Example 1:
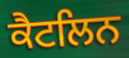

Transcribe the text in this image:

ਕੈਟਲਿਨ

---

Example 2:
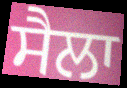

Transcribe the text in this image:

ਸੈਲਾ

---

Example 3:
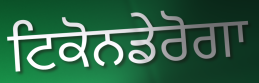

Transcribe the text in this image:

ਟਿਕੋਨਡੇਰੋਗਾ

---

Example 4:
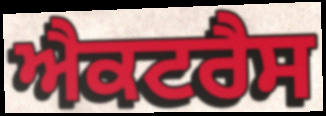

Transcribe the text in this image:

ਐਕਟਰੈਸ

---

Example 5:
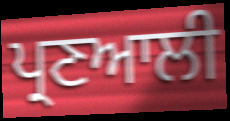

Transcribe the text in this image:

ਪ੍ਰਣਆਲੀ